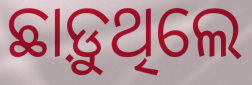
ଛାଡ଼ୁଥିଲେ